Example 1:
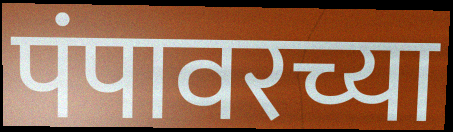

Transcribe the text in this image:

पंपावरच्या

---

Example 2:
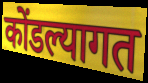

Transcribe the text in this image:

कोंडल्यागत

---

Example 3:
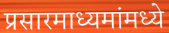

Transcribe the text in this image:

प्रसारमाध्यमांमध्ये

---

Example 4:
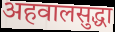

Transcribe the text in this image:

अहवालसुद्धा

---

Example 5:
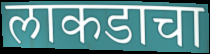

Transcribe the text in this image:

लाकडाचा